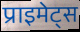
प्राइमेट्स